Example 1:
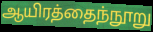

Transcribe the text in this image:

ஆயிரத்தைந்நூறு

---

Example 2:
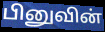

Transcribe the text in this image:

பினுவின்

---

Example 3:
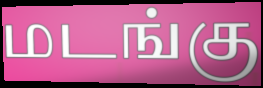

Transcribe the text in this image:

மடங்கு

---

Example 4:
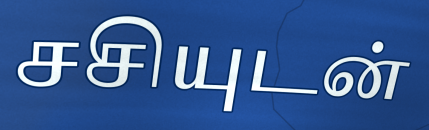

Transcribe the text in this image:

சசியுடன்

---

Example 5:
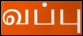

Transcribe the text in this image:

வப்பு